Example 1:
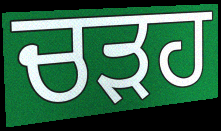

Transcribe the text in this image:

ਚੜਹ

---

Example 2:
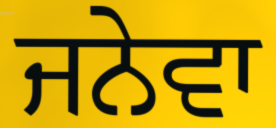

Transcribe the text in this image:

ਜਨੇਵਾ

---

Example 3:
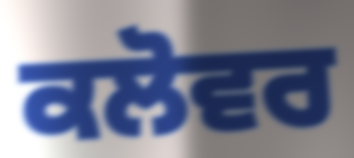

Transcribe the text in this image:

ਕਲੋਵਰ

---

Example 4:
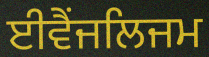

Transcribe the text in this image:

ਈਵੈਂਜਲਿਜਮ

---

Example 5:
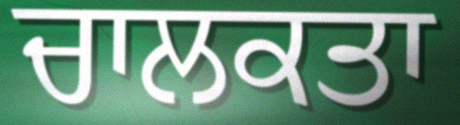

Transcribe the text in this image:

ਚਾਲਕਤਾ